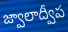
జ్వాలాద్వీప